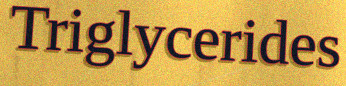
Triglycerides